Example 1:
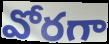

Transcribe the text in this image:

వోరగా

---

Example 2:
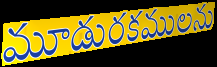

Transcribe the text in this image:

మూడురకములను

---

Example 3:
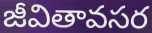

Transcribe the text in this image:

జీవితావసర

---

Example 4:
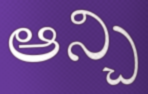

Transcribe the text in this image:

ఆన్చి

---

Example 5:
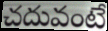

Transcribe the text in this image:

చదువంటే